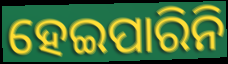
ହେଇପାରିନି